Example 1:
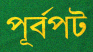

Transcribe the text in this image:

পূর্বপট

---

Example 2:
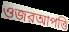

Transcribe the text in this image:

ওজরআপত্তি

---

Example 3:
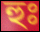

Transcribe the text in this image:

হুঃ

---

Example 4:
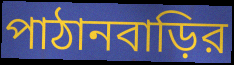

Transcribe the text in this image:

পাঠানবাড়ির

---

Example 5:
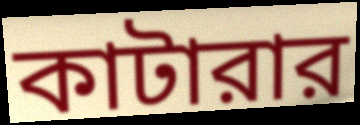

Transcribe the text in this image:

কাটারার